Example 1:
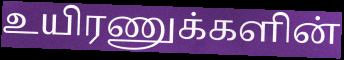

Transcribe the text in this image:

உயிரணுக்களின்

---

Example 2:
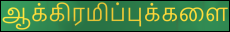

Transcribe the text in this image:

ஆக்கிரமிப்புக்களை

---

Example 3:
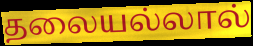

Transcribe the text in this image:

தலையல்லால்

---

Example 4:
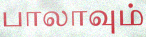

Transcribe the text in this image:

பாலாவும்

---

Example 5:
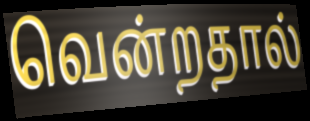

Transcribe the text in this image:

வென்றதால்